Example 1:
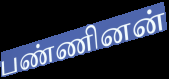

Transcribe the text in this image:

பண்ணினன்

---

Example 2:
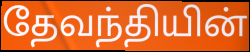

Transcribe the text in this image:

தேவந்தியின்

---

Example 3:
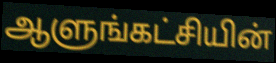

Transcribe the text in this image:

ஆளுங்கட்சியின்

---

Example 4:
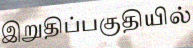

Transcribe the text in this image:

இறுதிப்பகுதியில்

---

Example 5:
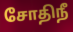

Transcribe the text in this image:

சோதிநீ